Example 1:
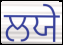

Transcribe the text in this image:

ਲਯੇ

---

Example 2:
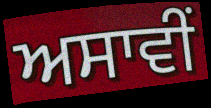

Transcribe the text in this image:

ਅਸਾਵੀਂ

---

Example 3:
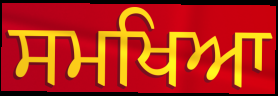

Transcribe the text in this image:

ਸਮਖਿਆ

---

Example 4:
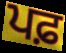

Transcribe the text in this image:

ਪਫ਼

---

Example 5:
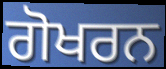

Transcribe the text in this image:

ਗੋਖਰਨ